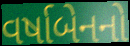
વર્ષાબેનનો